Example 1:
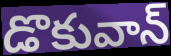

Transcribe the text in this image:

డొకువాన్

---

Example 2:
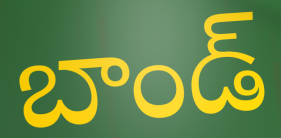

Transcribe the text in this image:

బాండ్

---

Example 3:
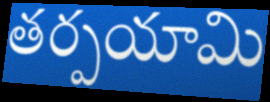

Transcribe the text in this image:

తర్పయామి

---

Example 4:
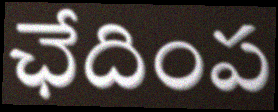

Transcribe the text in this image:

ఛేదింప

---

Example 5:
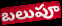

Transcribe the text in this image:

బలుపూ